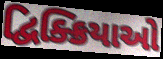
દ્વિક્ક્રિયાઓ